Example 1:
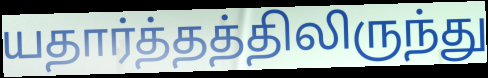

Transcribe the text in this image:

யதார்த்தத்திலிருந்து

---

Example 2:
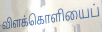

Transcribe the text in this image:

விளக்கொளியைப்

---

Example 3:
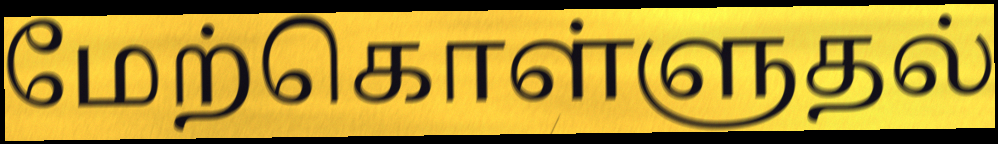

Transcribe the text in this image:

மேற்கொள்ளுதல்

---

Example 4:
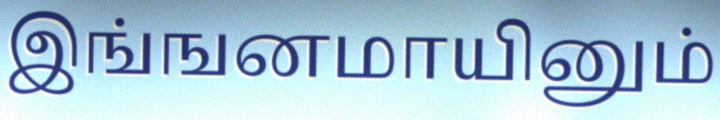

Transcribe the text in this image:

இங்ஙனமாயினும்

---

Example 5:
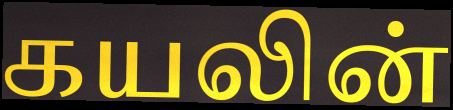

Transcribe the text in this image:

கயலின்